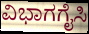
ವಿಭಾಗಗೈಸಿ